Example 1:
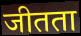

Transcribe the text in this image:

जीतता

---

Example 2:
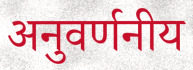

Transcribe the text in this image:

अनुवर्णनीय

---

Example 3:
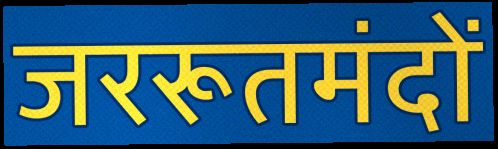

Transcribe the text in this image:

जररूतमंदों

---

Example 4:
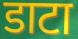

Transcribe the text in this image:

डाटा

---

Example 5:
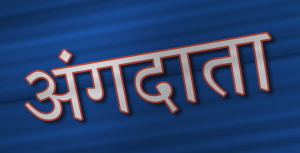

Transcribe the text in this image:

अंगदाता